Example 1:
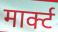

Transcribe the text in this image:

मार्क्ट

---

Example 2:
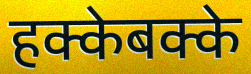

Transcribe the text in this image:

हक्केबक्के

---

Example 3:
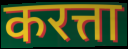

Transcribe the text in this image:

करत्ता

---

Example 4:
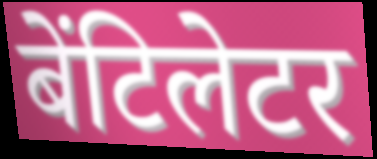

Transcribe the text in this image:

बेंटिलेटर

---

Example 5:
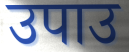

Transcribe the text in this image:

उपाउ